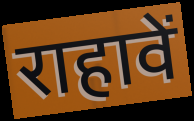
राहावें